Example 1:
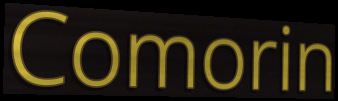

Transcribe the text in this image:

Comorin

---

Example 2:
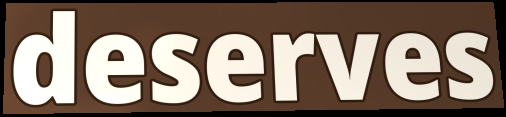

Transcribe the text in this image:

deserves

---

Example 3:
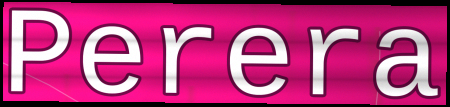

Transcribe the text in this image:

Perera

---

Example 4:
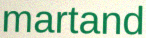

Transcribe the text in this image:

martand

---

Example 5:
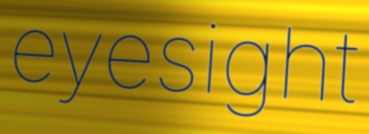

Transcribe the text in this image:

eyesight